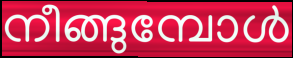
നീങ്ങുമ്പോൾ